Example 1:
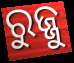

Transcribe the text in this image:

ରୁଜ୍ଜୁ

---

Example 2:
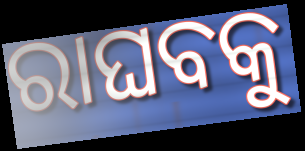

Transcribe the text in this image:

ରାଘବକୁ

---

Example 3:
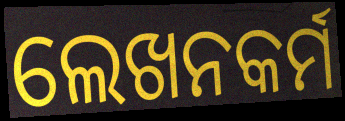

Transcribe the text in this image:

ଲେଖନକର୍ମ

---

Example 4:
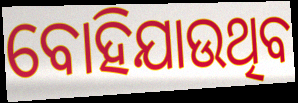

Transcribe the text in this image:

ବୋହିଯାଉଥିବ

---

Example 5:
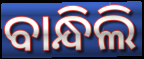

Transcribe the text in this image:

ବାନ୍ଧିଲି